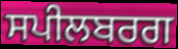
ਸਪੀਲਬਰਗ